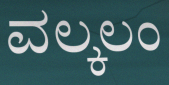
ವಲ್ಕಲಂ